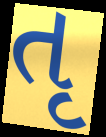
તૃ